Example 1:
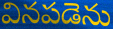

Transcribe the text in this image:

వినపడెను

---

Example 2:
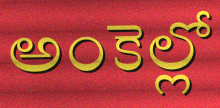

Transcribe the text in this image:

అంకెల్లో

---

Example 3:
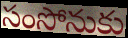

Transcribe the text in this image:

సంసోనుకు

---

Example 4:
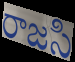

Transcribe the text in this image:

రాజసి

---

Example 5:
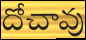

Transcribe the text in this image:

దోచావు